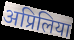
अप्रिलिया